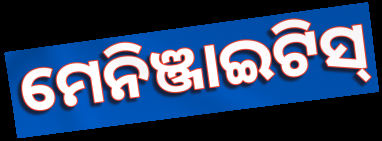
ମେନିଞ୍ଜାଇଟିସ୍